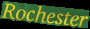
Rochester